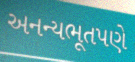
અનન્યભૂતપણે